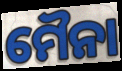
ମୈନା